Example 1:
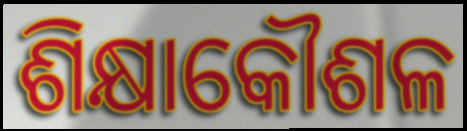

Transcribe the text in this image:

ଶିକ୍ଷାକୌଶଳ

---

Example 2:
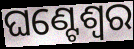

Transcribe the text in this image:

ଘଣ୍ଟେଶ୍ୱର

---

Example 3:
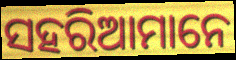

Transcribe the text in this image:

ସହରିଆମାନେ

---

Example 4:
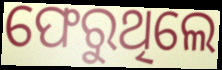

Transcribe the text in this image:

ଫେରୁଥିଲେ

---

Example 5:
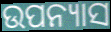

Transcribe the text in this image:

ଉପନ୍ୟାସ